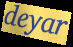
deyar